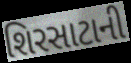
શિરસાટાની